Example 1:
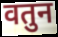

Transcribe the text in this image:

वतुन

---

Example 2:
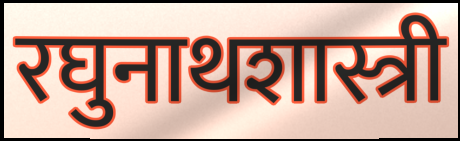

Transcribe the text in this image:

रघुनाथशास्त्री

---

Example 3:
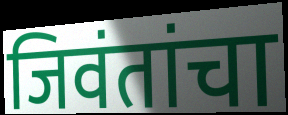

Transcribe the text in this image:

जिवंतांचा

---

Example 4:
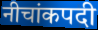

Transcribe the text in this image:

नीचांकपदी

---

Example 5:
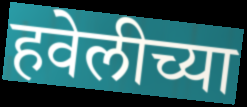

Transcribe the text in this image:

हवेलीच्या